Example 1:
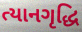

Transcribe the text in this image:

ત્યાનગૃદ્ધિ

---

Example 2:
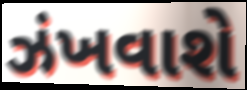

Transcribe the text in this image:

ઝંખવાશે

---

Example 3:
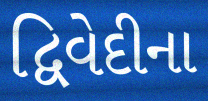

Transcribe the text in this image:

દ્વિવેદીના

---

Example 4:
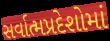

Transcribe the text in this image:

સર્વાત્મપ્રદેશોમાં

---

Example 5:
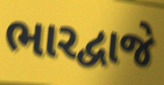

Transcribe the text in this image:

ભારદ્વાજે